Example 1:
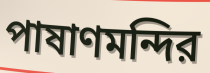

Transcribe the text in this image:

পাষাণমন্দির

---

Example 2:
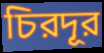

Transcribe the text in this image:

চিরদূর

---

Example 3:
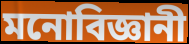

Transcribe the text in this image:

মনোবিজ্ঞানী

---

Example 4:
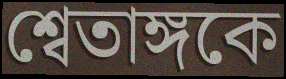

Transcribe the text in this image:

শ্বেতাঙ্গকে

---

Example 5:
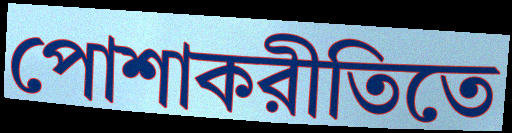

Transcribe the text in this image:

পোশাকরীতিতে